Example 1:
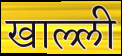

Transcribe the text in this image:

खाल्ली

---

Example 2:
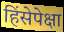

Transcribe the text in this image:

हिंसेपेक्षा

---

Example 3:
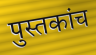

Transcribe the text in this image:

पुस्तकांच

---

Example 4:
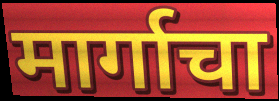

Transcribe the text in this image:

मार्गाचा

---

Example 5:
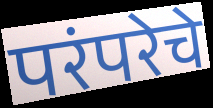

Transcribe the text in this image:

परंपरेचे